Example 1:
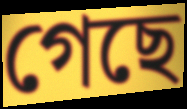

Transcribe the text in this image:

গেছে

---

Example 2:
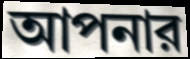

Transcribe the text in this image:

আপনার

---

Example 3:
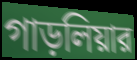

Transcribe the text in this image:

গাড়লিয়ার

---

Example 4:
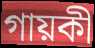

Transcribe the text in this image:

গায়কী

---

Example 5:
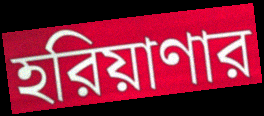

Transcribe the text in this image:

হরিয়াণার